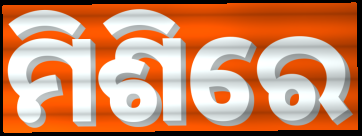
ମିଶିରେ